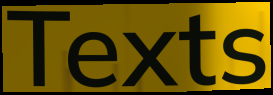
Texts